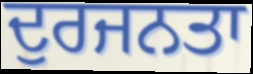
ਦੁਰਜਨਤਾ